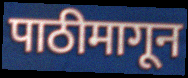
पाठीमागून